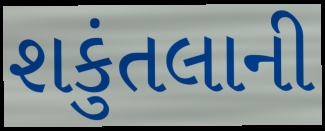
શકુંતલાની